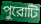
পুরোটি